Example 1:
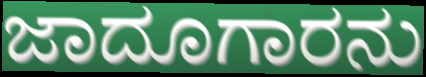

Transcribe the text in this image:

ಜಾದೂಗಾರನು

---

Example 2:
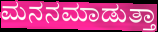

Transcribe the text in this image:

ಮನನಮಾಡುತ್ತಾ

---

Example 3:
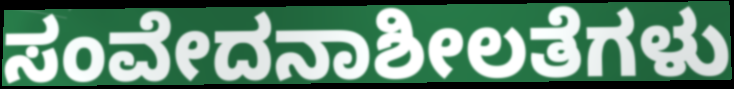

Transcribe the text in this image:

ಸಂವೇದನಾಶೀಲತೆಗಳು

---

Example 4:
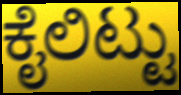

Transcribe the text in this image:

ಕೈಲಿಟ್ಟು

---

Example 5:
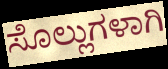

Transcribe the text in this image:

ಸೊಲ್ಲುಗಳಾಗಿ